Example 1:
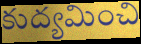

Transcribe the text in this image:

కుద్యమించి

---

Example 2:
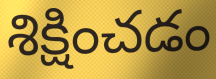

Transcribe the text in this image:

శిక్షించడం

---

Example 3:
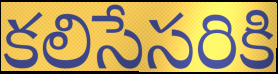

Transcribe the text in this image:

కలిసేసరికి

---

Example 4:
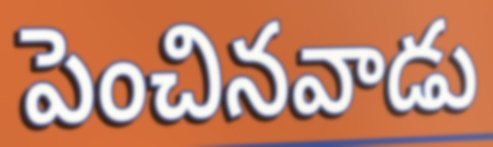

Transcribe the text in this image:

పెంచినవాడు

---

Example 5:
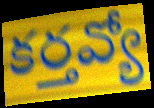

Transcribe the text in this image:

కర్తవ్యో